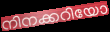
നിനക്കറിയോ